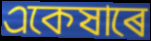
একেষাৰে